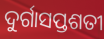
ଦୁର୍ଗାସପ୍ତଶତୀ